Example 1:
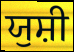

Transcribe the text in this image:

ਯੁਸ਼ੀ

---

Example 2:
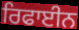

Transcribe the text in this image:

ਰਿਫਾਈਨ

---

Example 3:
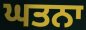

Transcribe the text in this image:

ਘਤਨਾ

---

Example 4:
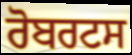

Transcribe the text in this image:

ਰੋਬਰਟਸ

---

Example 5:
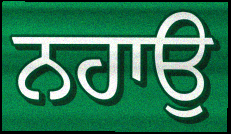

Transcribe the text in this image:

ਨਹਾਉ